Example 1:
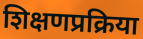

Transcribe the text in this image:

शिक्षणप्रक्रिया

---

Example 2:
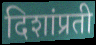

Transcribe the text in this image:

दिशांप्रती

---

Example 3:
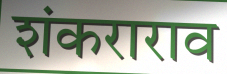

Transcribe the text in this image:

शंकराराव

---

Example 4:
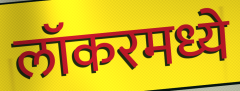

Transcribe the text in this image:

लॉकरमध्ये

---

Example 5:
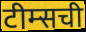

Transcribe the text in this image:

टीम्सची